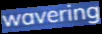
wavering